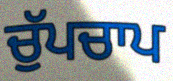
ਚੁੱਪਚਾਪ